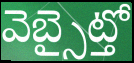
వెబ్సైట్తో